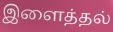
இளைத்தல்